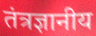
तंत्रज्ञानीय